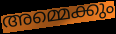
അമ്മെക്കും